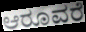
ಆರೂವರೆ